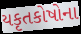
યકૃતકોષોના